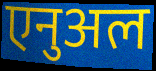
एनुअल